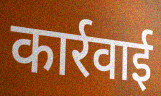
कार्रवाई